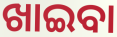
ଖାଇବା